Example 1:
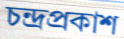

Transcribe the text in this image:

চন্দ্রপ্রকাশ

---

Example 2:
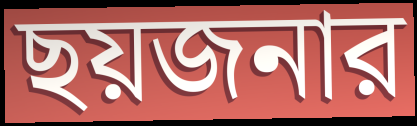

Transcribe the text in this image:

ছয়জনার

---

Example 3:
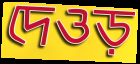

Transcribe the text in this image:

দেওড়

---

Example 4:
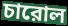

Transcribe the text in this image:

চারোল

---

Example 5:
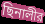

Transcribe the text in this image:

ছিনালীর